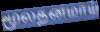
மூலதனமாய்